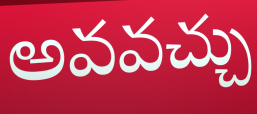
అవవచ్చు